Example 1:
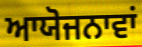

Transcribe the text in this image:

ਆਯੋਜਨਾਵਾਂ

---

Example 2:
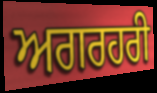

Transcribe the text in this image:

ਅਗਰਹਰੀ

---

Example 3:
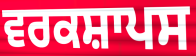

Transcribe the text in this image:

ਵਰਕਸ਼ਾਪਸ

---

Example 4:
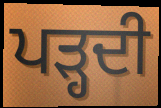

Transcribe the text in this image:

ਪਡ਼੍ਹਦੀ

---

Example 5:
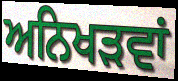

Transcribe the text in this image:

ਅਨਿਖੜਵਾਂ